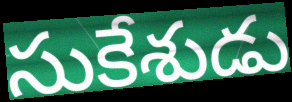
సుకేశుడు